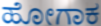
ಹೋಗಾಕ